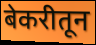
बेकरीतून